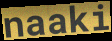
naaki